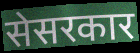
सेसरकार